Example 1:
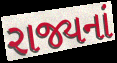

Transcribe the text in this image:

રાજ્યનાં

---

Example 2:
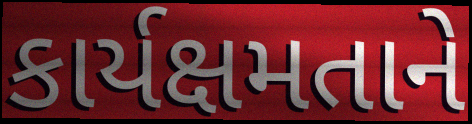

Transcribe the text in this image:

કાર્યક્ષમતાને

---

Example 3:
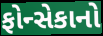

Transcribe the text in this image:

ફોન્સેકાનો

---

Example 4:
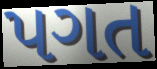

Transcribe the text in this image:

પગત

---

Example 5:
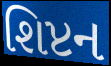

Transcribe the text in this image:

શિપ્ટન